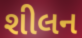
શીલન